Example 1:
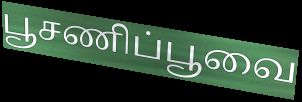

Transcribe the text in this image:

பூசணிப்பூவை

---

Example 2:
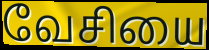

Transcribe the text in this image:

வேசியை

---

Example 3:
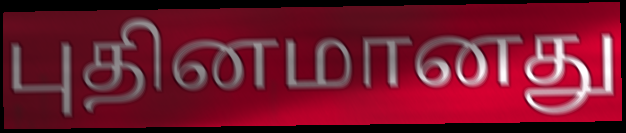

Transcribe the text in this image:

புதினமானது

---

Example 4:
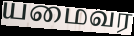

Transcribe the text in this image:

யமைவர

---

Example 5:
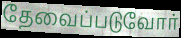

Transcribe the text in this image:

தேவைப்படுவோர்